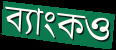
ব্যাংকও